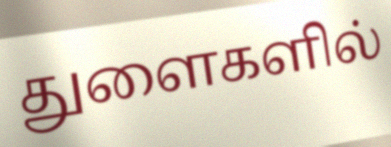
துளைகளில்